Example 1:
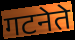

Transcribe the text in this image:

गटनेते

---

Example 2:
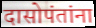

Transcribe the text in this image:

दासोपंतांना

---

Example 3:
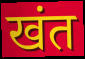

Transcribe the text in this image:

खंत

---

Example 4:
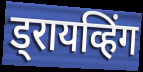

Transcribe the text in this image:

ड्रायव्हिंग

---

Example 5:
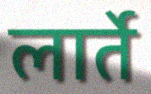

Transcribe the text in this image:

लार्ते